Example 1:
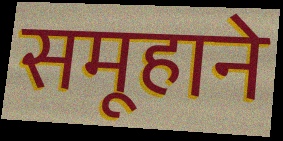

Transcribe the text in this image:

समूहाने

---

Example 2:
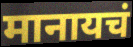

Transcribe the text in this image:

मानायचं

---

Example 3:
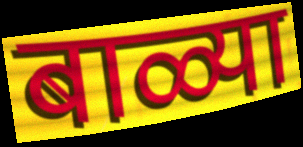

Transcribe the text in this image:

बाळ्या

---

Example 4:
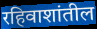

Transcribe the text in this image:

रहिवाशांतील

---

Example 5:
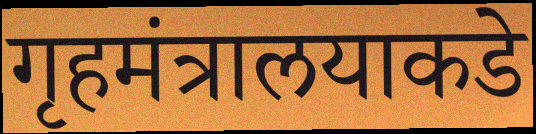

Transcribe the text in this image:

गृहमंत्रालयाकडे